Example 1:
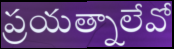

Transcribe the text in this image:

ప్రయత్నాలేవో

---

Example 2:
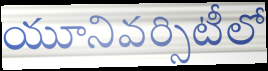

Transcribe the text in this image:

యూనివర్సిటీలో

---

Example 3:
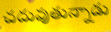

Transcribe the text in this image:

చదువుతున్నాడు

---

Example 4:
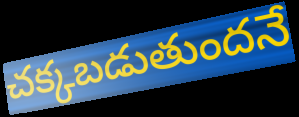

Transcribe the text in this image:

చక్కబడుతుందనే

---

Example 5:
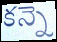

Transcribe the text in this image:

కన్నె